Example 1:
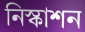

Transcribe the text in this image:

নিস্কাশন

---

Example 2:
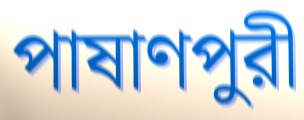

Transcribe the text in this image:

পাষাণপুরী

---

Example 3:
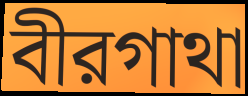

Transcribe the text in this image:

বীরগাথা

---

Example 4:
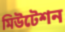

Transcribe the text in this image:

মিউটেশন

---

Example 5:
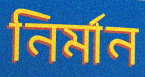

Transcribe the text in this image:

নির্মান